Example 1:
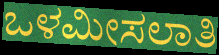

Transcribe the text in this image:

ಒಳಮೀಸಲಾತಿ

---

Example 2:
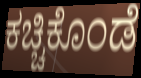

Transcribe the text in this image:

ಕಚ್ಚಿಕೊಂಡೆ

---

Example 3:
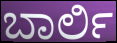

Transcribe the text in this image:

ಬಾರ್ಲಿ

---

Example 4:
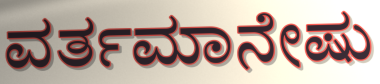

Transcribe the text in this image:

ವರ್ತಮಾನೇಷು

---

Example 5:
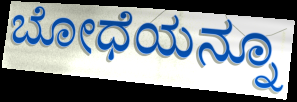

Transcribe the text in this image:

ಬೋಧೆಯನ್ನೂ